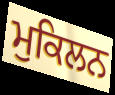
ਮੁਕਿਲਨ